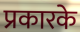
प्रकारके